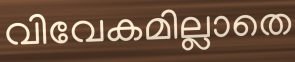
വിവേകമില്ലാതെ